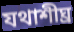
যথাশীঘ্র